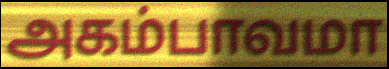
அகம்பாவமா